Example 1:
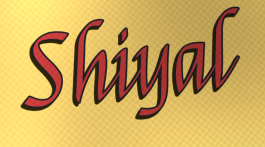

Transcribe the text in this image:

Shiyal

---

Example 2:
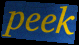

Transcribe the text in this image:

peek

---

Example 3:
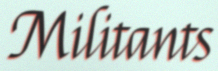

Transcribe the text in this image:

Militants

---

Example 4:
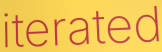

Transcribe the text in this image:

iterated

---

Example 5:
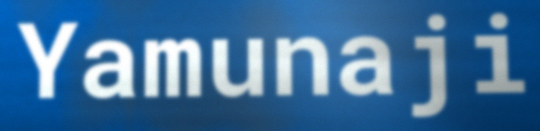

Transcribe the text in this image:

Yamunaji